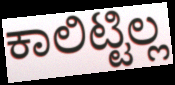
ಕಾಲಿಟ್ಟಿಲ್ಲ